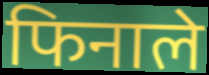
फिनाले